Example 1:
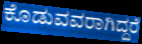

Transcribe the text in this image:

ಕೊಡುವವರಾಗಿದ್ದರೆ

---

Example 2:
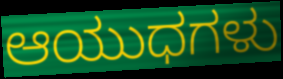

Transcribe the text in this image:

ಆಯುಧಗಳು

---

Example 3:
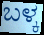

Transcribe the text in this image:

ಬಳ್ಕ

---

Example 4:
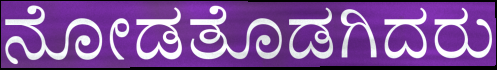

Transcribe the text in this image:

ನೋಡತೊಡಗಿದರು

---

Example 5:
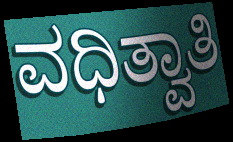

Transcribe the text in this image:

ವಧಿತ್ವಾತಿ